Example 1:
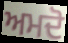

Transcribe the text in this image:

ਅਮਦੋ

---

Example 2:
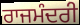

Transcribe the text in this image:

ਰਾਜਮੰਦਰੀ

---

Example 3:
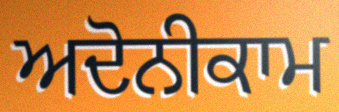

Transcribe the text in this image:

ਅਦੋਨੀਕਾਮ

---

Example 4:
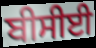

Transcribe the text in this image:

ਬੀਸੀਈ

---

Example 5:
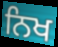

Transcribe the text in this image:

ਨਿਖ